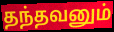
தந்தவனும்